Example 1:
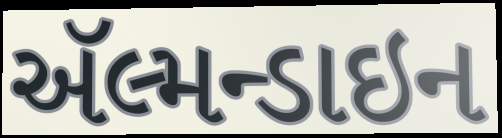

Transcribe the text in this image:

ઍલ્મન્ડાઇન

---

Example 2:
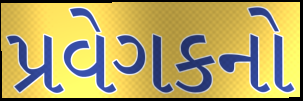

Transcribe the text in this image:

પ્રવેગકનો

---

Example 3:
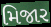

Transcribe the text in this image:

મિજાર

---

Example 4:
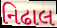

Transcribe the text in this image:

નિઢાલ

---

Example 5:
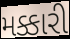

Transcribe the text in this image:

મક્કારી